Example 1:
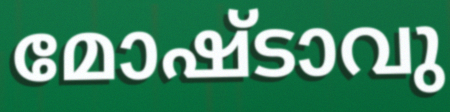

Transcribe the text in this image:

മോഷ്ടാവു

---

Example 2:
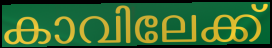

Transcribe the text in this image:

കാവിലേക്ക്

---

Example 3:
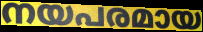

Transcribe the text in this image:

നയപരമായ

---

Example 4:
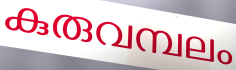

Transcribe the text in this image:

കുരുവമ്പലം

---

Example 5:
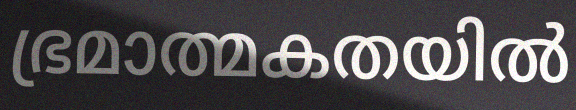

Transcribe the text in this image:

ഭ്രമാത്മകതയിൽ